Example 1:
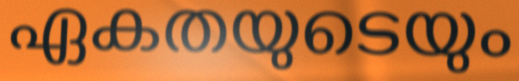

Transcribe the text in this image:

ഏകതയുടെയും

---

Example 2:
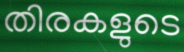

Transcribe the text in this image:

തിരകളുടെ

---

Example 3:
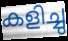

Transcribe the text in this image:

കളിച്ചു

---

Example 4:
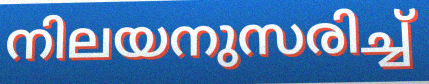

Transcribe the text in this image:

നിലയനുസരിച്ച്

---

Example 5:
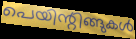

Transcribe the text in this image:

പെയിന്റിങ്ങുകൾ